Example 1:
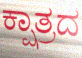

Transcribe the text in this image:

ಕ್ಷಾತ್ರದ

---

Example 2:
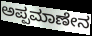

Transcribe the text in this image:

ಅಪ್ಪಮಾಣೇನ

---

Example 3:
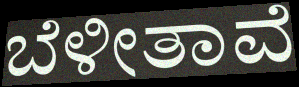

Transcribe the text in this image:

ಬೆಳೀತಾವೆ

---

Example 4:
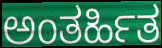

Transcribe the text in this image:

ಅಂತರ್ಹಿತ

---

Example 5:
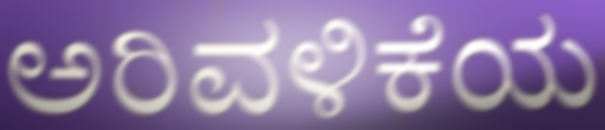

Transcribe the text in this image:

ಅರಿವಳಿಕೆಯ